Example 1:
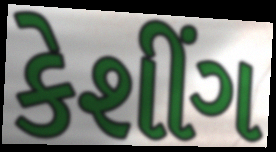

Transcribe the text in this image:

કેશીંગ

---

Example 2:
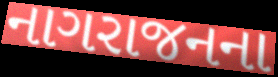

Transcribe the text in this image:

નાગરાજનના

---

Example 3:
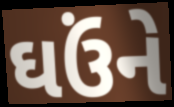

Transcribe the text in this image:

ઘઉંને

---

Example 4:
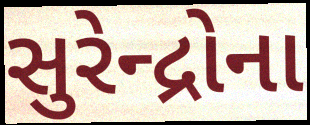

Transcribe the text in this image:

સુરેન્દ્રોના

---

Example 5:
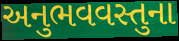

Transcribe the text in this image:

અનુભવવસ્તુના